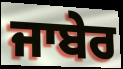
ਜਾਬੇਰ